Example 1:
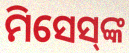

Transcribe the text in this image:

ମିସେସ୍‍ଙ୍କ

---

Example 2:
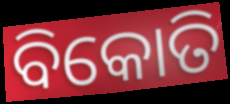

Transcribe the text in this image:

ବିକୋତି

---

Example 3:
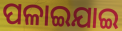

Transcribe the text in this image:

ପଳାଇଯାଇ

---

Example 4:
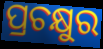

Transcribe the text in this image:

ପ୍ରଚକ୍ଷୁର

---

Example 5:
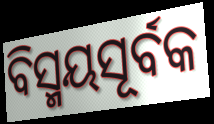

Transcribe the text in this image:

ବିସ୍ମୟସୂର୍ବକ